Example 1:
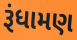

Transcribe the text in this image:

રૂંધામણ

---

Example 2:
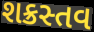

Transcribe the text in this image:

શક્રસ્તવ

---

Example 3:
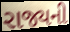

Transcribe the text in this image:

રાજ્યની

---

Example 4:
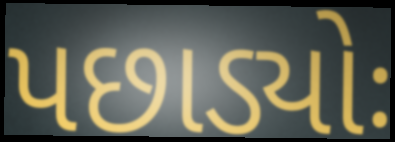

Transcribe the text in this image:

પછાડ્યોઃ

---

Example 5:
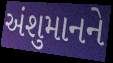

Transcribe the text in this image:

અંશુમાનને